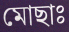
মোছাঃ